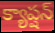
క్యాప్షన్